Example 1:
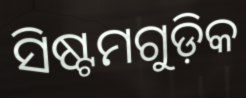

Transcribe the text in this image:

ସିଷ୍ଟମଗୁଡ଼ିକ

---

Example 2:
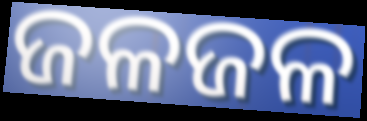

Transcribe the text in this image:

ଜଳଜଳ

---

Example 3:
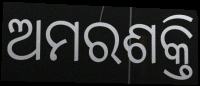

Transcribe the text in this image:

ଅମରଶକ୍ତି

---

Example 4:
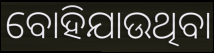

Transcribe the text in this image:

ବୋହିଯାଉଥିବା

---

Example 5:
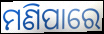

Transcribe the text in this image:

ମଣିପାରେ